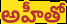
అహీతో